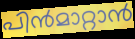
പിൻമാറ്റാൻ